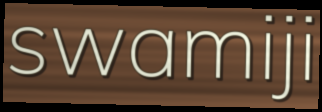
swamiji